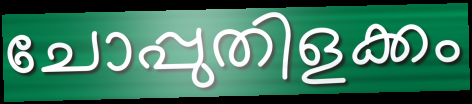
ചോപ്പുതിളക്കം